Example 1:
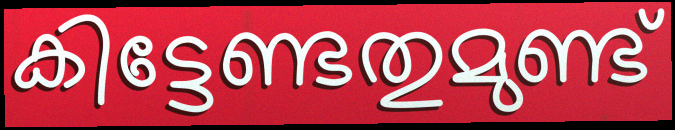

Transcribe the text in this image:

കിട്ടേണ്ടതുമുണ്ട്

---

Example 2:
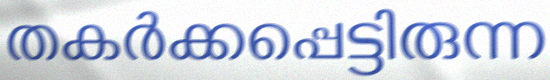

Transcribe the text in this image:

തകർക്കപ്പെട്ടിരുന്ന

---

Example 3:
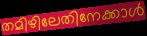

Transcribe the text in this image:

തമിഴിലേതിനേക്കാൾ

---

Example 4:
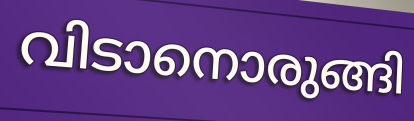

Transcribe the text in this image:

വിടാനൊരുങ്ങി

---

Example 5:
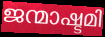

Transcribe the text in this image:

ജന്മാഷ്ടമി